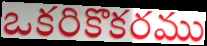
ఒకరికొకరము